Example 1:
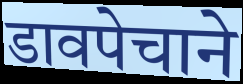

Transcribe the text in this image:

डावपेचाने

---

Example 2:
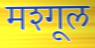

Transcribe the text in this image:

मश्गूल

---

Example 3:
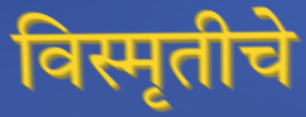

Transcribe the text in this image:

विस्मृतीचे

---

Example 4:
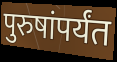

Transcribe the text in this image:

पुरुषांपर्यंत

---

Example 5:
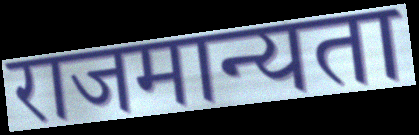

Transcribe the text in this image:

राजमान्यता